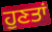
ਹੁਣਤਾਂ